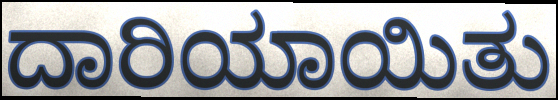
ದಾರಿಯಾಯಿತು